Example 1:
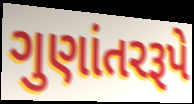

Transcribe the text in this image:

ગુણાંતરરૂપે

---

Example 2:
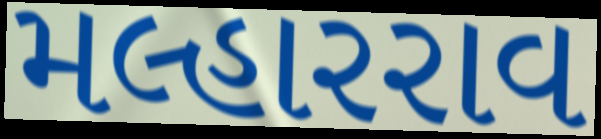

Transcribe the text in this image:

મલ્હારરાવ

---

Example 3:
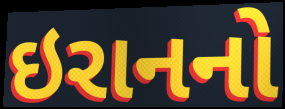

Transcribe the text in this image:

ઇરાનનો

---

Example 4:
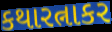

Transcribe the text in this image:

કથારત્નાકર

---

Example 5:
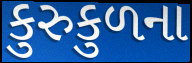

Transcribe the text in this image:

કુરુકુળના